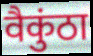
वैकुंठा